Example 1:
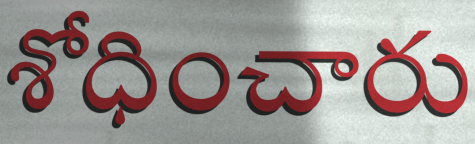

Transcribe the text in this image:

శోధించారు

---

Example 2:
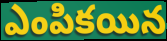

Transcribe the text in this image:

ఎంపికయిన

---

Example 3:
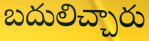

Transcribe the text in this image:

బదులిచ్చారు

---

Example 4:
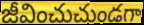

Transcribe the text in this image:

జీవించుచుండగా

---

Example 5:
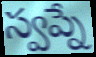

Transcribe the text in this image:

స్వప్నే